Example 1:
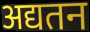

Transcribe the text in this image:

अद्यतन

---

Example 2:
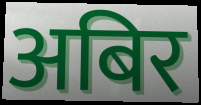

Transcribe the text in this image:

अबिर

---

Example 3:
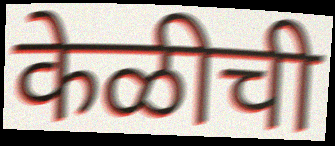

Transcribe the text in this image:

केळीची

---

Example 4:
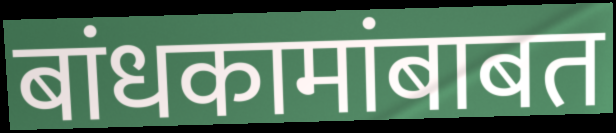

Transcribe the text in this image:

बांधकामांबाबत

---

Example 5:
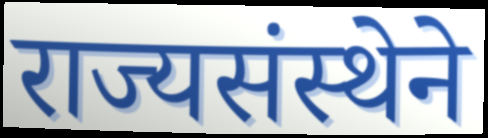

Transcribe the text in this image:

राज्यसंस्थेने